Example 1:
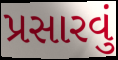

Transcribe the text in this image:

પ્રસારવું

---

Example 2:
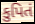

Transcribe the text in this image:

કુપિતં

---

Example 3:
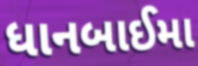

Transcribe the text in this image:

ધાનબાઈમા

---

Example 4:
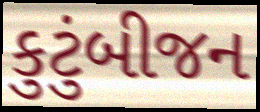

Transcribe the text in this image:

કુટુંબીજન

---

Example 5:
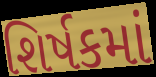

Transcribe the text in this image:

શિર્ષકમાં